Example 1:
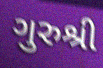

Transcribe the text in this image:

ગુરુશ્રી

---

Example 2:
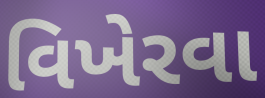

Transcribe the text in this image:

વિખેરવા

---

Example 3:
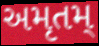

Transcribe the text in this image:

અમૃતમ્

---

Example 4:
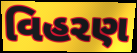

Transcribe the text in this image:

વિહરણ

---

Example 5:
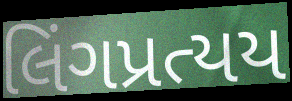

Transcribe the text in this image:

લિંગપ્રત્યય